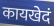
कायखेदं